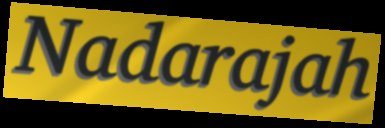
Nadarajah